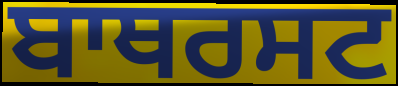
ਬਾਥਰਸਟ